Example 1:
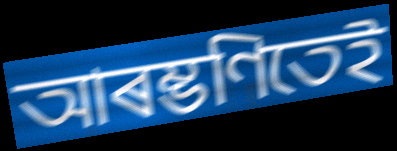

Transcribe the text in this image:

আৰম্ভণিতেই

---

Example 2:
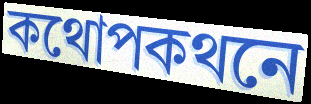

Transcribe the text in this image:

কথোপকথনে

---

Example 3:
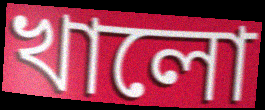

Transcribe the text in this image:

খালো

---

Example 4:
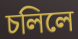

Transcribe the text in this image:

চলিলে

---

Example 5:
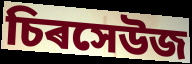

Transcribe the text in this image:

চিৰসেউজ